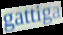
gattiga